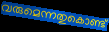
വരുമെന്നതുകൊണ്ട്